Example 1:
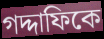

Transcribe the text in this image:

গদ্দাফিকে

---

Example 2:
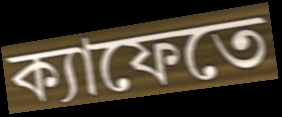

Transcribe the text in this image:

ক্যাফেতে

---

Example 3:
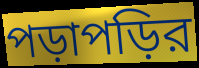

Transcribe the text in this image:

পড়াপড়ির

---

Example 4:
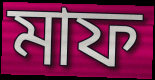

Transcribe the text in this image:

মাফ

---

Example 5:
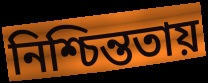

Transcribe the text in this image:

নিশ্চিন্ততায়